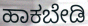
ಹಾಕಬೇಡಿ